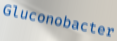
Gluconobacter